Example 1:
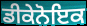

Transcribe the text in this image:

ਡੀਕੇਨੋਇਕ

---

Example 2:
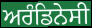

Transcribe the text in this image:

ਅਰੰਡਿਨੇਸੀ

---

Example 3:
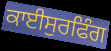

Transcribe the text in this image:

ਕਾਈਸੁਰਫਿੰਗ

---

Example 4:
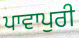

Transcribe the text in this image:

ਪਾਵਾਪੁਰੀ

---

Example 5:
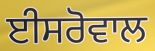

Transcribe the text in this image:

ਈਸਰੋਵਾਲ